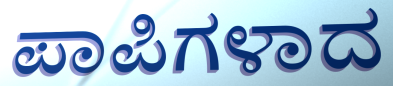
ಪಾಪಿಗಳಾದ